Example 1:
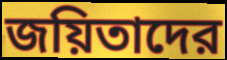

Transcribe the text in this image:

জয়িতাদের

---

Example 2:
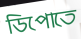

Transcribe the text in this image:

ডিপোতে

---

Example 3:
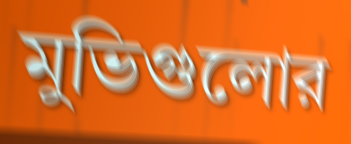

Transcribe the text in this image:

মুভিগুলোর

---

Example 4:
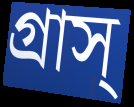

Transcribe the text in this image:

গ্রাস্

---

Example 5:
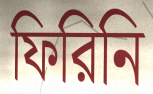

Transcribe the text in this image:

ফিরিনি